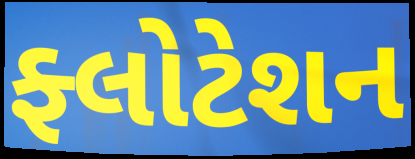
ફ્લોટેશન